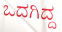
ಒದಗಿದ್ದ